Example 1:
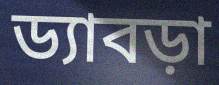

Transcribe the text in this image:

ড্যাবড়া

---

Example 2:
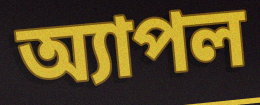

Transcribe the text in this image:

অ্যাপল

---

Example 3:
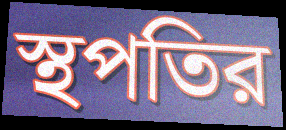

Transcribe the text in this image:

স্থপতির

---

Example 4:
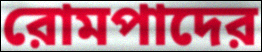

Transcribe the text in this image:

রোমপাদের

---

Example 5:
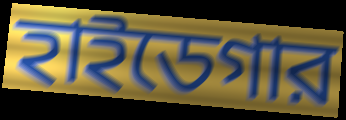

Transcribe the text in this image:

হাইডেগার